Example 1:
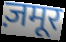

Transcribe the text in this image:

ज़मूर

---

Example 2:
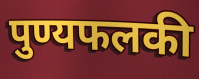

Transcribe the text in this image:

पुण्यफलकी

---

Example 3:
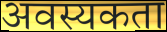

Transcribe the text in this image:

अवस्यकता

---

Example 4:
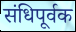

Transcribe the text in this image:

संधिपूर्वक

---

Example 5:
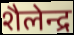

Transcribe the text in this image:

शैलेन्द्र